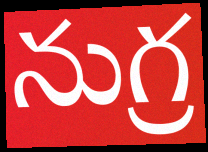
నుగ్ర